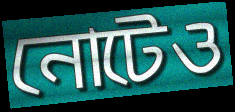
নোটেও